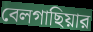
বেলগাছিয়ার